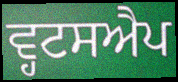
ਵ੍ਹਟਸਐਪ